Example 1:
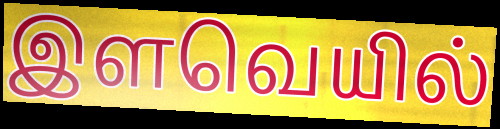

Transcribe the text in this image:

இளவெயில்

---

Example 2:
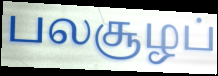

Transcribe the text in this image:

பலசூழப்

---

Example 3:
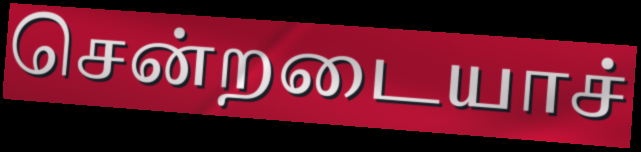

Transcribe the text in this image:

சென்றடையாச்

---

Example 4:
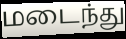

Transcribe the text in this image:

மடைந்து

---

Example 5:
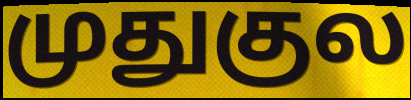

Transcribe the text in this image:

முதுகுல